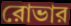
রোভার